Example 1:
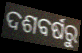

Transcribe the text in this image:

ଦଶବର୍ଷରୁ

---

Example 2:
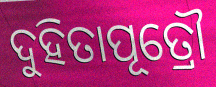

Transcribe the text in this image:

ଦୁହିତାପୂତ୍ରୌ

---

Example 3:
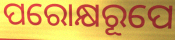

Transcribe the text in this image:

ପରୋକ୍ଷରୂପେ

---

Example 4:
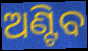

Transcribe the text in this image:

ଅଣ୍ଟିବ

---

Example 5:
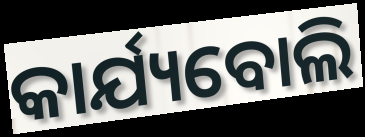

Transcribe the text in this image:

କାର୍ଯ୍ୟବୋଲି